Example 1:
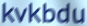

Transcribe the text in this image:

kvkbdu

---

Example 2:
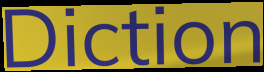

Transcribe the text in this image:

Diction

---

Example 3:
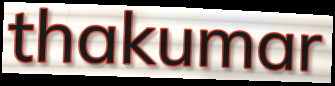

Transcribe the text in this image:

thakumar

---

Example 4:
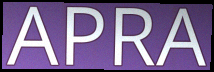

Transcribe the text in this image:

APRA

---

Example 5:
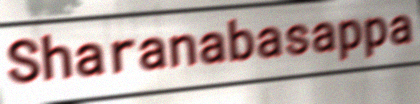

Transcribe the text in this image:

Sharanabasappa